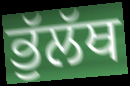
ਭੁੱਲੱਥ